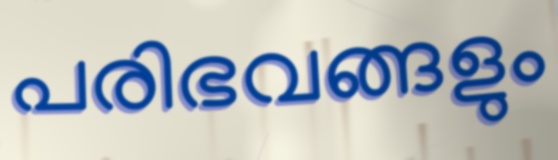
പരിഭവങ്ങളും